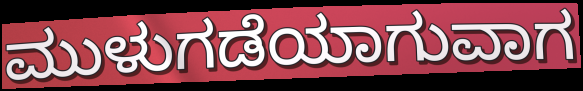
ಮುಳುಗಡೆಯಾಗುವಾಗ